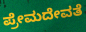
ಪ್ರೇಮದೇವತೆ